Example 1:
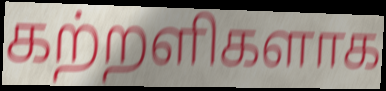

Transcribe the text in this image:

கற்றளிகளாக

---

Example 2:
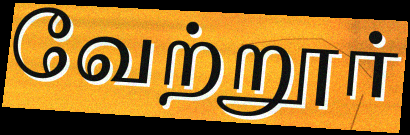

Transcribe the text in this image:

வேற்றூர்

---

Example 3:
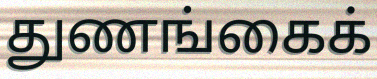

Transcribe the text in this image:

துணங்கைக்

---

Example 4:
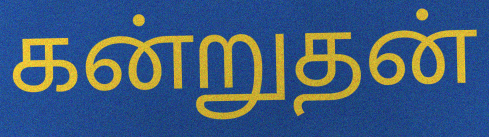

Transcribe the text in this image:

கன்றுதன்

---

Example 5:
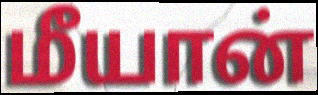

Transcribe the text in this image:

மீயான்